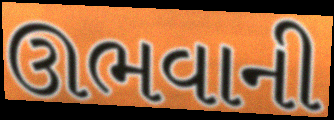
ઊભવાની